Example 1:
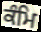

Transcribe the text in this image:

ਕੰਮਿ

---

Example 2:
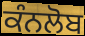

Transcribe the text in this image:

ਕੰਨਲੋਬ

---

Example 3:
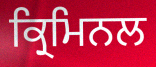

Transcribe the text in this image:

ਕ੍ਰਿਮਿਨਲ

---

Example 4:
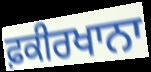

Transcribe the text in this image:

ਫ਼ਕੀਰਖਾਨਾ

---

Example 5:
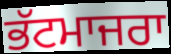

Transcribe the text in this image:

ਭੱਟਮਾਜਰਾ